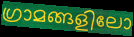
ഗ്രാമങ്ങളിലോ